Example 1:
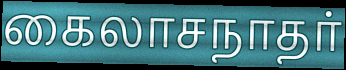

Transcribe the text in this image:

கைலாசநாதர்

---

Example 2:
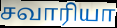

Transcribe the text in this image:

சவாரியா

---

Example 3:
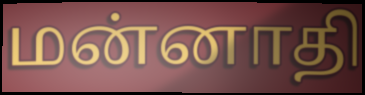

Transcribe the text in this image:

மன்னாதி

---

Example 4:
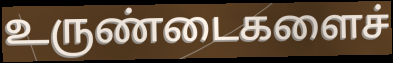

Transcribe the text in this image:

உருண்டைகளைச்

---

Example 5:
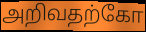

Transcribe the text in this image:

அறிவதற்கோ